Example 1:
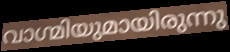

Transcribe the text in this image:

വാഗ്മിയുമായിരുന്നു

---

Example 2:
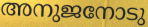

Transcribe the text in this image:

അനുജനോടു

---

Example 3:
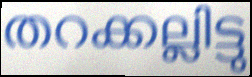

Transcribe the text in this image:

തറക്കല്ലിട്ടു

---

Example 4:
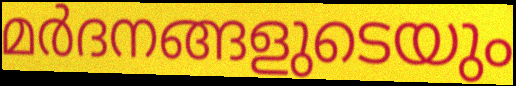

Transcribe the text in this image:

മർദനങ്ങളുടെയും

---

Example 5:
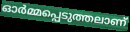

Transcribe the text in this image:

ഓർമ്മപ്പെടുത്തലാണ്